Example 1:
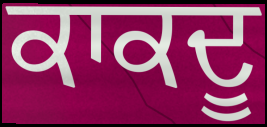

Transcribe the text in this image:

ਕਾਕਦੂ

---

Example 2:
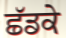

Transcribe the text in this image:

ਛੱਡਕੇ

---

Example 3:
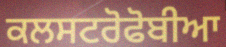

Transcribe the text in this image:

ਕਲਸਟਰੋਫੋਬੀਆ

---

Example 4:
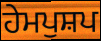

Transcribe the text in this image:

ਹੇਮਪੁਸ਼ਪ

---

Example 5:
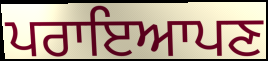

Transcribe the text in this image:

ਪਰਾਇਆਪਣ